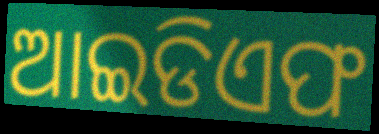
ଆଇଡିଏଫ